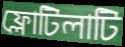
ফ্লোটিলাটি